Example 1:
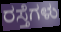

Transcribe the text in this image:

ರಸ್ತೆಗಳು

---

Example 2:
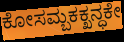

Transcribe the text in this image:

ಕೋಸಮ್ಬಕಕ್ಖನ್ಧಕೇ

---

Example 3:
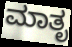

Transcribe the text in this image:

ಮಾತೃ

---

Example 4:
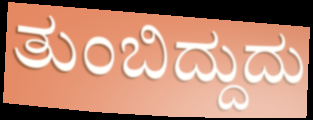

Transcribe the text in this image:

ತುಂಬಿದ್ದುದು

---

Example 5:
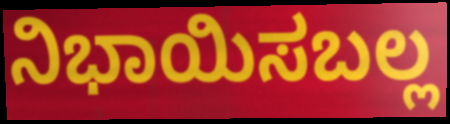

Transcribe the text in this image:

ನಿಭಾಯಿಸಬಲ್ಲ